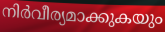
നിർവീര്യമാക്കുകയും